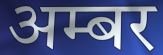
अम्‍बर